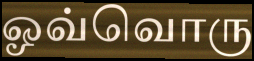
ஓவ்வொரு